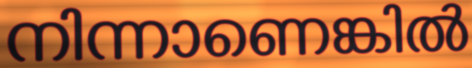
നിന്നാണെങ്കിൽ